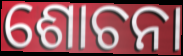
ଶୋଚନା